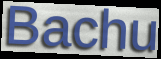
Bachu